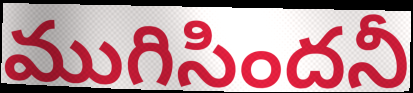
ముగిసిందనీ